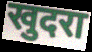
खुदरा